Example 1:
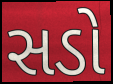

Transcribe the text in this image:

સડો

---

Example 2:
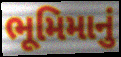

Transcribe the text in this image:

ભૂમિમાનું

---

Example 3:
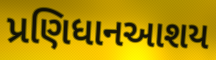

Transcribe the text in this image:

પ્રણિધાનઆશય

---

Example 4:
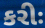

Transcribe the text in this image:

કરીઃ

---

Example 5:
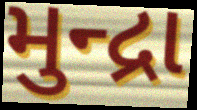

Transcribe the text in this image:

મુન્દ્રા